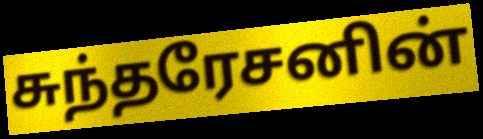
சுந்தரேசனின்